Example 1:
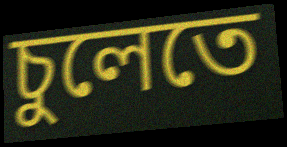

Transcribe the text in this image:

চুলেতে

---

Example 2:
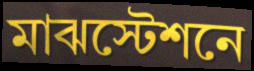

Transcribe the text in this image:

মাঝস্টেশনে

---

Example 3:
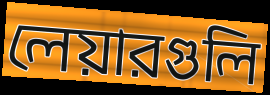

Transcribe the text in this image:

লেয়ারগুলি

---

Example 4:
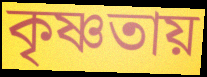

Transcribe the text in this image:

কৃষ্ণতায়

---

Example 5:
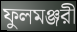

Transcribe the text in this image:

ফুলমঞ্জরী